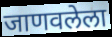
जाणवलेला